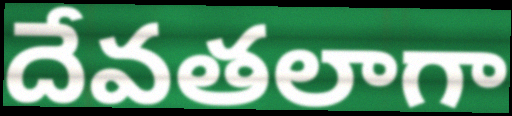
దేవతలాగా